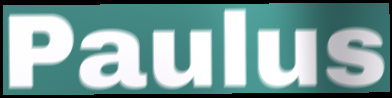
Paulus